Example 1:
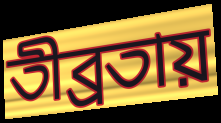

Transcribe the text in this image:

তীব্রতায়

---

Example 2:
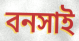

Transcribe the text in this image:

বনসাই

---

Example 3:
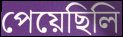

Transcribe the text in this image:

পেয়েছিলি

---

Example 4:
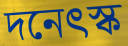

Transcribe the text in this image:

দনেৎস্ক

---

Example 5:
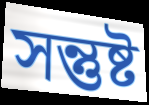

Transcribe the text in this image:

সন্তুষ্ট